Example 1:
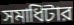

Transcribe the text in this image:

সমাধিটার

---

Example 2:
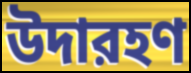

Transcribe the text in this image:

উদারহণ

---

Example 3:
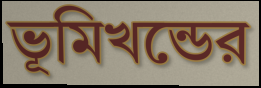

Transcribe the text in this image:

ভূমিখন্ডের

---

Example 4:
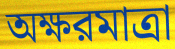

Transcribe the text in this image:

অক্ষরমাত্রা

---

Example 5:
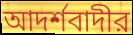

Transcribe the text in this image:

আদর্শবাদীর